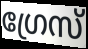
ഗ്രേസ്